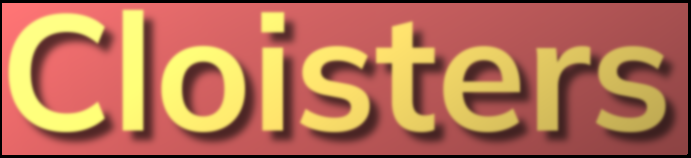
Cloisters